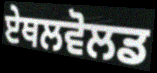
ਏਥਲਵੋਲਡ